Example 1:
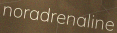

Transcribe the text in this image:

noradrenaline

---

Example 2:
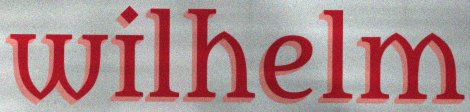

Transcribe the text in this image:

wilhelm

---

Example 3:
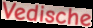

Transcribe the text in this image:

Vedische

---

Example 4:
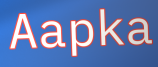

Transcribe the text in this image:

Aapka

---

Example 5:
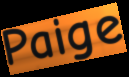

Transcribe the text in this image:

Paige